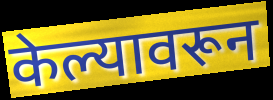
केल्यावरून